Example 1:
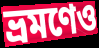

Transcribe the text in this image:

ভ্রমণেও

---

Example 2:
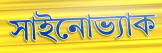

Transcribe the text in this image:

সাইনোভ্যাক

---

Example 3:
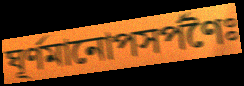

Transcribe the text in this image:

ঘূর্ণমানোপসর্পণৈঃ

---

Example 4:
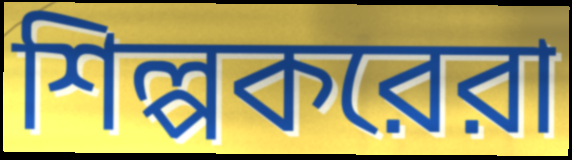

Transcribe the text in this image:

শিল্পকরেরা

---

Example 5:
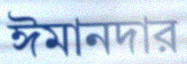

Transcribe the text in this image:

ঈমানদার